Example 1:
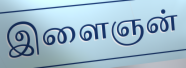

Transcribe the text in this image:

இளைஞன்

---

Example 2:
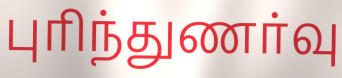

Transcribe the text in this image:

புரிந்துணர்வு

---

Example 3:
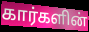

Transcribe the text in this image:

கார்களின்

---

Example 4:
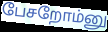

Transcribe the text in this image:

பேசறோம்னு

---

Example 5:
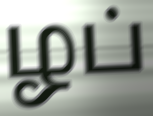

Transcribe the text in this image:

ழப்